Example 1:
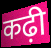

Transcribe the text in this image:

कढ़ी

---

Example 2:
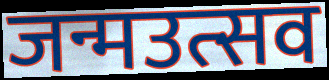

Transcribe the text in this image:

जन्मउत्सव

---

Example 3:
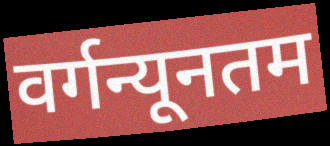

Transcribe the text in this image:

वर्गन्यूनतम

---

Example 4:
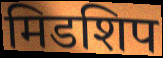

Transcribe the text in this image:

मिडशिप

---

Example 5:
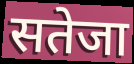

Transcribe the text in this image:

सतेजा